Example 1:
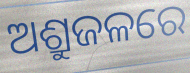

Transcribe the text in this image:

ଅଶ୍ରୁଜଳରେ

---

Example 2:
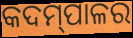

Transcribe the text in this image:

କଦମ୍‍ପାଳର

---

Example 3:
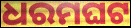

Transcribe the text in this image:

ଧରମଘଟ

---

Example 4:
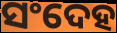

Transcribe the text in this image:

ସଂଦେହ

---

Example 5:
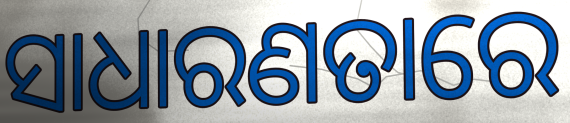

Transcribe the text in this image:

ସାଧାରଣତାରେ